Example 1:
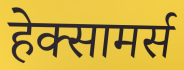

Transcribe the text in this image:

हेक्सामर्स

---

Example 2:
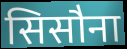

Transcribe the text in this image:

सिसौना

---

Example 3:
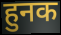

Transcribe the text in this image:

हुनक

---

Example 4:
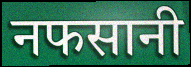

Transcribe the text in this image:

नफसानी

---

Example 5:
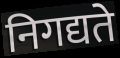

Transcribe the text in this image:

निगद्यते